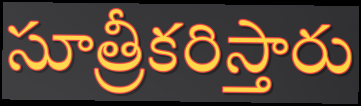
సూత్రీకరిస్తారు